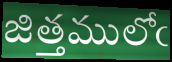
జిత్తములోఁ